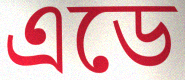
এডে